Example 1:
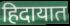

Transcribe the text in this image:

हिदायात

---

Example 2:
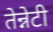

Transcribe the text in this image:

तेन्नेटी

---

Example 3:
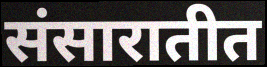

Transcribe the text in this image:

संसारातीत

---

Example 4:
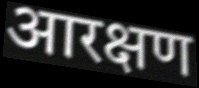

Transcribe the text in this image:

आरक्षण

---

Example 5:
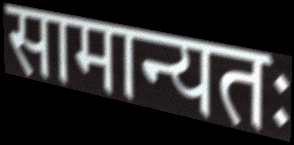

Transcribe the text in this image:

सामान्यतः